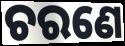
ଚରଣେ